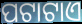
ପଟାଟାଏ